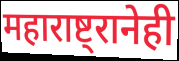
महाराष्ट्रानेही